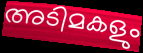
അടിമകളും